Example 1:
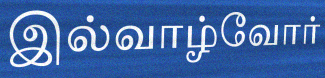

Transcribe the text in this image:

இல்வாழ்வோர்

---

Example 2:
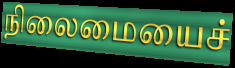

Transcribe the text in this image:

நிலைமையைச்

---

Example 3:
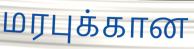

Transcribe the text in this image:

மரபுக்கான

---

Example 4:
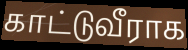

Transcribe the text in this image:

காட்டுவீராக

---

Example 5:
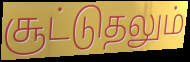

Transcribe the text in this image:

சூட்டுதலும்